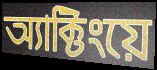
অ্যাক্টিংয়ে